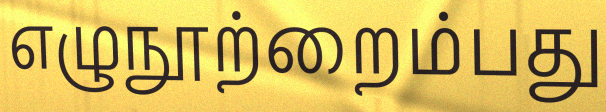
எழுநூற்றைம்பது